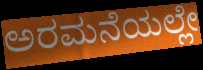
ಅರಮನೆಯಲ್ಲೇ